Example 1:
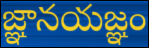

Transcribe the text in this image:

జ్ఞానయజ్ఞం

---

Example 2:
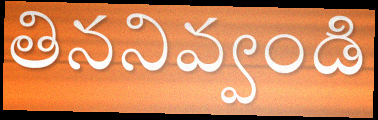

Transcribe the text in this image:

తిననివ్వండి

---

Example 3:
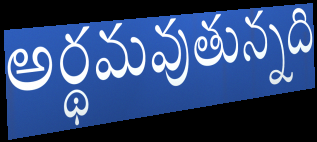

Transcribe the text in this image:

అర్థమవుతున్నది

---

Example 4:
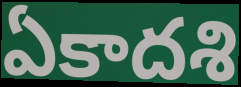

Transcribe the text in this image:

ఏకాదశి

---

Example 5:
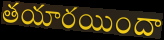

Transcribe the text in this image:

తయారయిందా